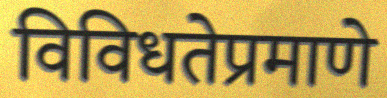
विविधतेप्रमाणे